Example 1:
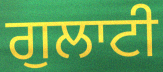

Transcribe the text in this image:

ਗੁਲਾਟੀ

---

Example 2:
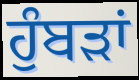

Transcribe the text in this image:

ਹੁੰਬੜਾਂ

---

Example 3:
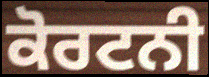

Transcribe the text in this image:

ਕੋਰਟਨੀ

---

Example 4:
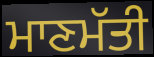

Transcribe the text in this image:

ਮਾਣਮੱਤੀ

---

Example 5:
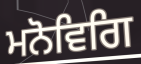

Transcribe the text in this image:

ਮਨੋਵਿਗਿ